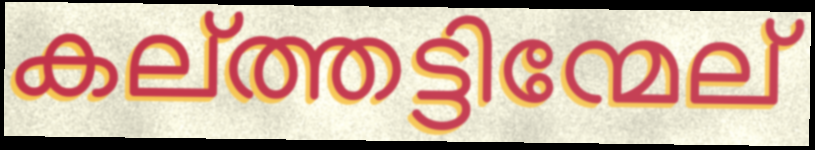
കല്ത്തട്ടിന്മേല്